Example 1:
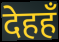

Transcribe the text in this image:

देहहँ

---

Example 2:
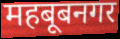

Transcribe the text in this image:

महबूबनगर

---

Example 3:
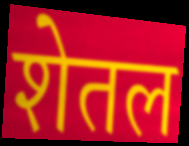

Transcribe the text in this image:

शेतल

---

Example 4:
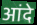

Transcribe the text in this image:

आंदे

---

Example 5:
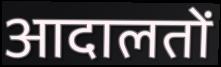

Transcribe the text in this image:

आदालतों